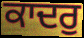
ਕਾਦਰੁ